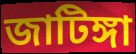
জাটিঙ্গা